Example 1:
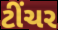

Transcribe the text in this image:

ટીંચર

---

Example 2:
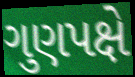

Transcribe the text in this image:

ગુણપક્ષે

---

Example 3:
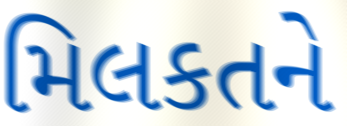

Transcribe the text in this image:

મિલકતને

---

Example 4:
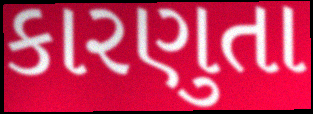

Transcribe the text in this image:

કારણુતા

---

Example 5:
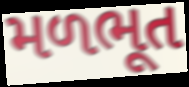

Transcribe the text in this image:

મળભૂત